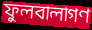
ফুলবালাগণ